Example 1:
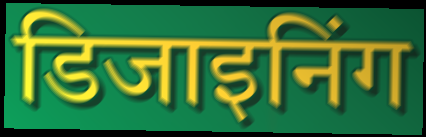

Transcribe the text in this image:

डिजाइनिंग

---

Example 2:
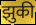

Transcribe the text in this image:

झुकी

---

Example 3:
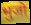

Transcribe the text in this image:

भुजो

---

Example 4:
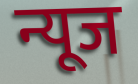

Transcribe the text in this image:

न्यूज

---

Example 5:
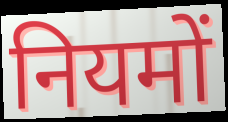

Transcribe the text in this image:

नियमों